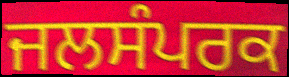
ਜਲਸੰਪਰਕ